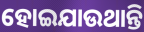
ହୋଇଯାଉଥାନ୍ତି